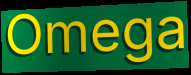
Omega